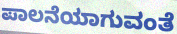
ಪಾಲನೆಯಾಗುವಂತೆ